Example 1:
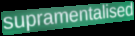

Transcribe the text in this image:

supramentalised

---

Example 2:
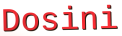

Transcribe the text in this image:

Dosini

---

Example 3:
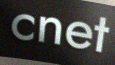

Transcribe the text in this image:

cnet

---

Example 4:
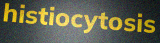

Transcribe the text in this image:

histiocytosis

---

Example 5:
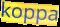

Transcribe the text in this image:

koppa